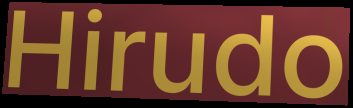
Hirudo